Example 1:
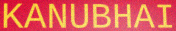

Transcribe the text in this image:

KANUBHAI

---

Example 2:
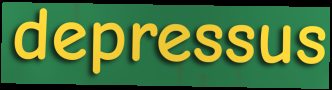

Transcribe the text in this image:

depressus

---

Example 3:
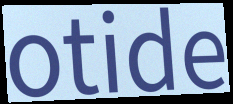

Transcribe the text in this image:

otide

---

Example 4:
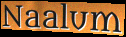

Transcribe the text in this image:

Naalum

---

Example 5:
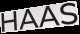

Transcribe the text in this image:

HAAS